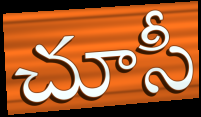
చూసీ